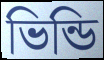
ভিন্ডি